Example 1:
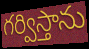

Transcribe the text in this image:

గర్విస్తాను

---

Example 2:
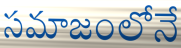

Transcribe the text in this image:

సమాజంలోనే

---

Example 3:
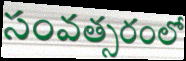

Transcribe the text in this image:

సంవత్సరంలో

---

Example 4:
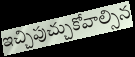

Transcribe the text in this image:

ఇచ్చిపుచ్చుకోవాల్సిన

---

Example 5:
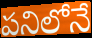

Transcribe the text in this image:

పనిలోనే